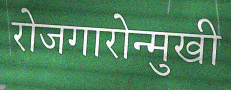
रोजगारोन्मुखी